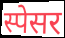
स्पेसर